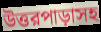
উত্তরপাড়াসহ